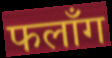
फलाँग